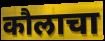
कौलाचा